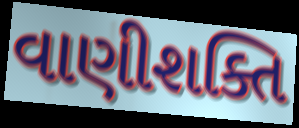
વાણીશક્તિ